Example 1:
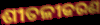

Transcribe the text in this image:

ଶୀତଳୀକରଣ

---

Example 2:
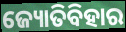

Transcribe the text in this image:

ଜ୍ୟୋତିବିହାର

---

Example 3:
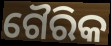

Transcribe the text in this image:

ଗୈରିକ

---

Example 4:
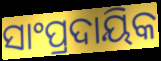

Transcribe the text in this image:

ସାଂପ୍ରଦାୟିକ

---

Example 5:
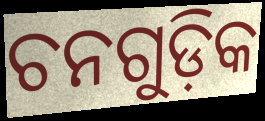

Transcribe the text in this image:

ଚନଗୁଡ଼ିକ